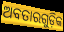
ଅବତାରଗୁଡ଼ିକ